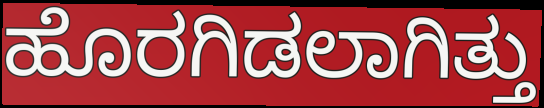
ಹೊರಗಿಡಲಾಗಿತ್ತು